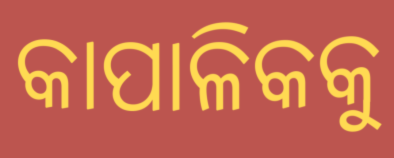
କାପାଳିକକୁ